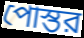
পোস্তর